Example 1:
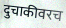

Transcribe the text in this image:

दुचाकीवरच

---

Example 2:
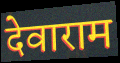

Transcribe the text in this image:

देवाराम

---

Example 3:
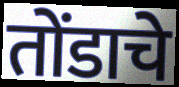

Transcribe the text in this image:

तोंडाचे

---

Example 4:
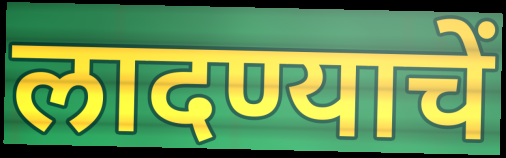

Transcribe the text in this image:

लादण्याचें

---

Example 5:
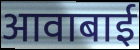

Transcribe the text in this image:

आवाबाई